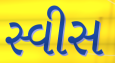
સ્વીસ